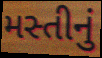
મસ્તીનું